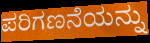
ಪರಿಗಣನೆಯನ್ನು